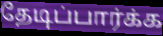
தேடிப்பார்க்க